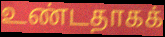
உண்டதாகக்